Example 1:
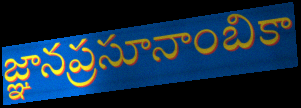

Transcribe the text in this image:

జ్ఞానప్రసూనాంబికా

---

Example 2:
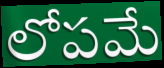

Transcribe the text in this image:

లోపమే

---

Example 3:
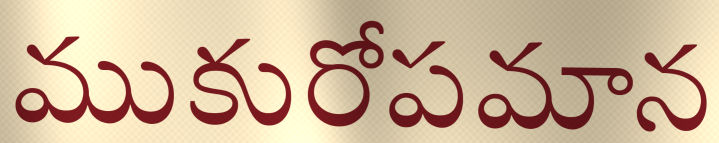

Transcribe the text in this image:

ముకురోపమాన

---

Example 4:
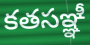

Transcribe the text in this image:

కతసఞ్ఞీ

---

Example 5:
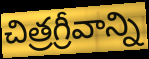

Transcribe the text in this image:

చిత్రగ్రీవాన్ని